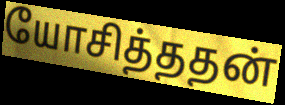
யோசித்ததன்